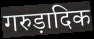
गरुड़ादिक